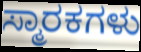
ಸ್ಮಾರಕಗಳು